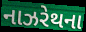
નાઝરેથના